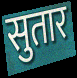
सुतार